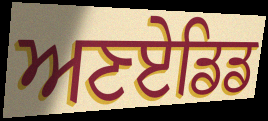
ਅਣਏਡਿਡ